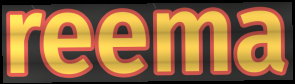
reema